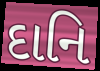
દાનિ